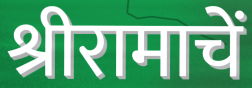
श्रीरामाचें